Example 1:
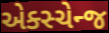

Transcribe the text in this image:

એક્સ્ચેન્જ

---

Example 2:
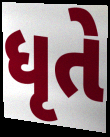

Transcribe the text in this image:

ધૃતે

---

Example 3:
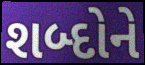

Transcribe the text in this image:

શબ્દોને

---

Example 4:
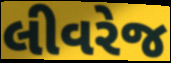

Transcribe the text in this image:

લીવરેજ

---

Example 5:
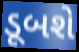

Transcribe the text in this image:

ડૂબશે